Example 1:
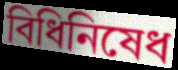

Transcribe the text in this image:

বিধিনিষেধ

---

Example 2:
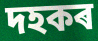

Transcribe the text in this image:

দহকৰ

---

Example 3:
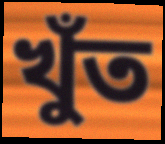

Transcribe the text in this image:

খুঁত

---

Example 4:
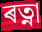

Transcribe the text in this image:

ৰত্না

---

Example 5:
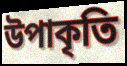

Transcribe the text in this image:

উপাকৃতি